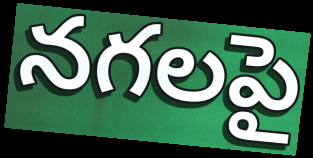
నగలపై